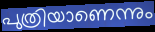
പുത്രിയാണെന്നും